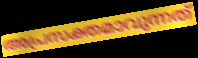
അപ്രസക്തമാവുന്നത്